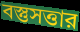
বস্তুসত্তার